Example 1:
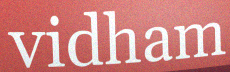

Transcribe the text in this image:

vidham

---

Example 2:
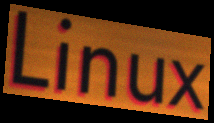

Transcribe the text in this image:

Linux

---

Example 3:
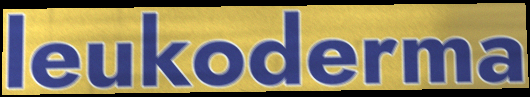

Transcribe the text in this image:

leukoderma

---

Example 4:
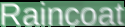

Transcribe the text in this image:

Raincoat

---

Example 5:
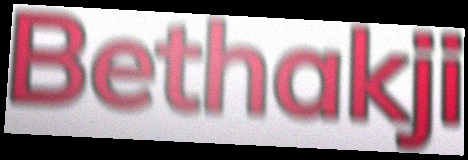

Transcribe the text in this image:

Bethakji